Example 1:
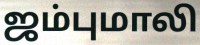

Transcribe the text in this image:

ஜம்புமாலி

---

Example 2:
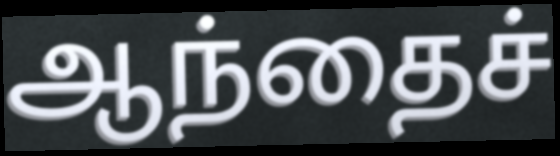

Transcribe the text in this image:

ஆந்தைச்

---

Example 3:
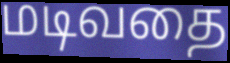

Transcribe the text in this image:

மடிவதை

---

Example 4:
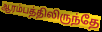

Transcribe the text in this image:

ஆரம்பத்திலிருந்தே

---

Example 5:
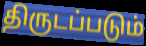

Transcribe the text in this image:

திருடப்படும்